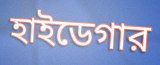
হাইডেগার